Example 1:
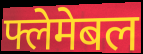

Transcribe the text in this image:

फ्लेमेबल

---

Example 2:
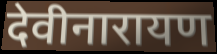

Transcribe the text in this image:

देवीनारायण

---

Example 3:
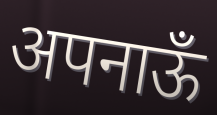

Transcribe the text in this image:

अपनाऊँ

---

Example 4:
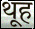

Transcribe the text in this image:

थूह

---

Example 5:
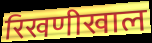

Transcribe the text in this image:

रिखणीखाल